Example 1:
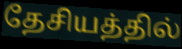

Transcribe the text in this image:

தேசியத்தில்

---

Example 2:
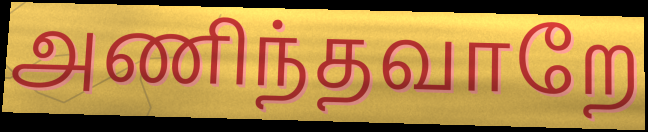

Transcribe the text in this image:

அணிந்தவாறே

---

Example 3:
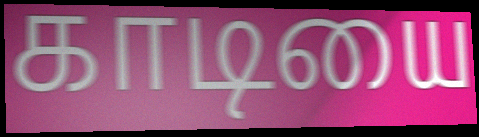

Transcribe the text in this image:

காடியை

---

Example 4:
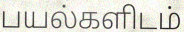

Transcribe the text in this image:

பயல்களிடம்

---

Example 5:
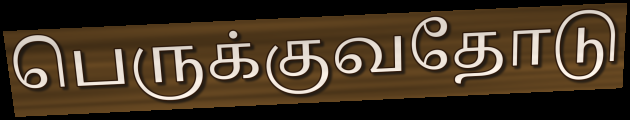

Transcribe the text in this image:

பெருக்குவதோடு